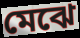
মেঝে